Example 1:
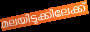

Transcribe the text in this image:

മലയിടുക്കിലേക്ക്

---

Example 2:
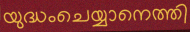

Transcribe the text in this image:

യുദ്ധംചെയ്യാനെത്തി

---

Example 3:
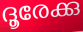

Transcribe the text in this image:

ദൂരേക്കു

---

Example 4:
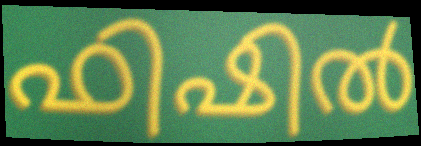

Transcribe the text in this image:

ഫിഷിൽ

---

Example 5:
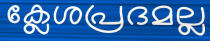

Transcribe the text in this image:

ക്ലേശപ്രദമല്ല